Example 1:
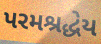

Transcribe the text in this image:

પરમશ્રદ્ધેય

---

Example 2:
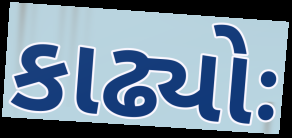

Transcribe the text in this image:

કાઢ્યોઃ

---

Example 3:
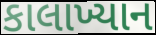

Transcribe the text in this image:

કાલાખ્યાન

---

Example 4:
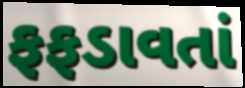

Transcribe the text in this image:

ફફડાવતાં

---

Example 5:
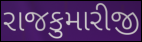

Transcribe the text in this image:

રાજકુમારીજી